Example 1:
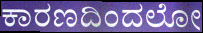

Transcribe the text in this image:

ಕಾರಣದಿಂದಲೋ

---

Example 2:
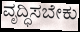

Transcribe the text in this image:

ವೃದ್ಧಿಸಬೇಕು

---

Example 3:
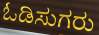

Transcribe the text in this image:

ಓಡಿಸುಗರು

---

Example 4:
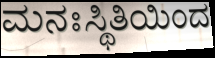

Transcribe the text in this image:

ಮನಃಸ್ಥಿತಿಯಿಂದ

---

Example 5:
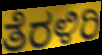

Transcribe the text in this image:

ತೆರಳಿರಿ